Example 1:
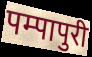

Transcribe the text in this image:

पम्पापुरी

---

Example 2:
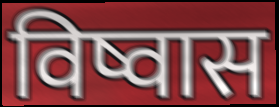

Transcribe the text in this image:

विष्वास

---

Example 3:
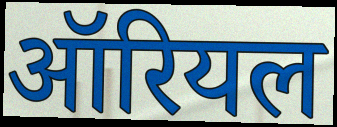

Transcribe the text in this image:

ऑरियल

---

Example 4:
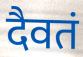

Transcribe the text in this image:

दैवतं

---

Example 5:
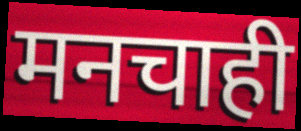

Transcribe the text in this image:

मनचाही